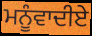
ਮਨੂੰਵਾਦੀਏ